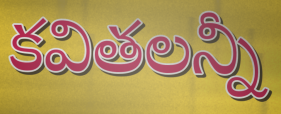
కవితలన్నీ